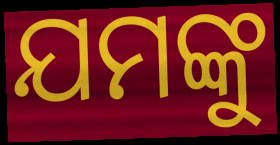
ଯମଙ୍କୁ